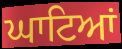
ਘਾਟਿਆਂ